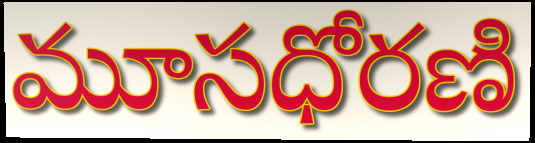
మూసధోరణి